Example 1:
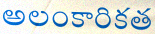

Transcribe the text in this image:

అలంకారికత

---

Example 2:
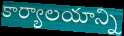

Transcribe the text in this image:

కార్యాలయాన్ని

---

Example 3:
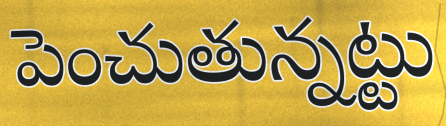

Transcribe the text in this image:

పెంచుతున్నట్టు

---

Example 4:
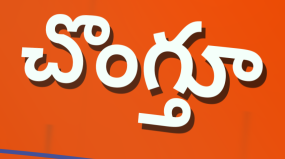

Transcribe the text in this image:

చొంగ్తూ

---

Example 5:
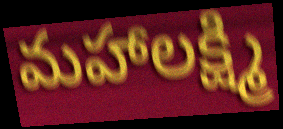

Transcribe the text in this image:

మహాలక్ష్మి